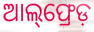
ଆଲ୍‌ଫ୍ରେଡ଼